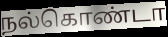
நல்கொண்டா